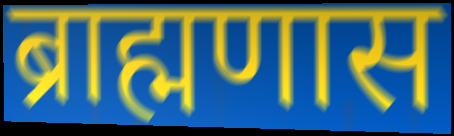
ब्राह्मणास